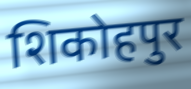
शिकोहपुर